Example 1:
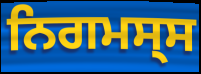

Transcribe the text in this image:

ਨਿਗਮਸ੍ਸ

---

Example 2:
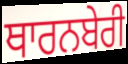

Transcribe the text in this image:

ਥਾਰਨਬੇਰੀ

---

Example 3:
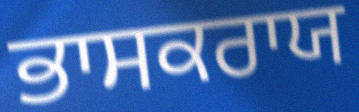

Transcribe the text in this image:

ਭਾਸਕਰਾਯ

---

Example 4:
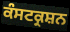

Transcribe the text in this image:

ਕੰਸਟਕ੍ਰਸ਼ਨ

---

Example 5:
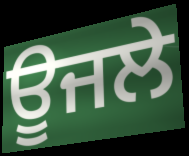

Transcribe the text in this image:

ਊਜਲੇ